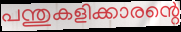
പന്തുകളിക്കാരന്റെ